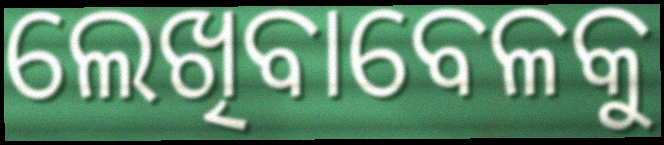
ଲେଖିବାବେଳକୁ